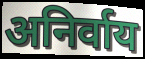
अनिर्वाय